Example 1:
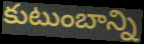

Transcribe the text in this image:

కుటుంబాన్ని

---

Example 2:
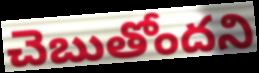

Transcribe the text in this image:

చెబుతోందని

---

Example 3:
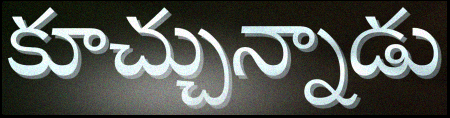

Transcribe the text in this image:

కూచ్చున్నాడు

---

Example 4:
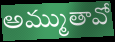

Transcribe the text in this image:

అమ్ముతావో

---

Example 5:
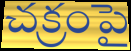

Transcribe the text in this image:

చక్రంపై